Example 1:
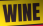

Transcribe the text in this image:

WINE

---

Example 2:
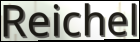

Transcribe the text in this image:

Reichel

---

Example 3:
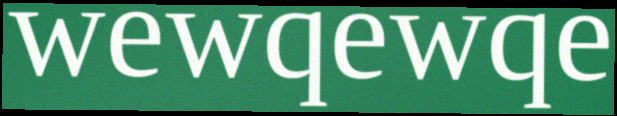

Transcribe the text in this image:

wewqewqe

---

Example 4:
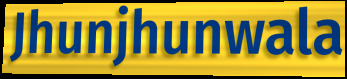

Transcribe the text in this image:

Jhunjhunwala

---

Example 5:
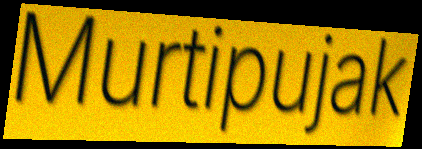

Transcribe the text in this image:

Murtipujak